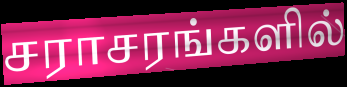
சராசரங்களில்